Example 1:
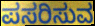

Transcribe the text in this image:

ಪಸರಿಸುವ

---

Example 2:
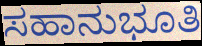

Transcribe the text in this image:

ಸಹಾನುಭೂತಿ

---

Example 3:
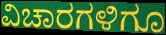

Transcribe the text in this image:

ವಿಚಾರಗಳಿಗೂ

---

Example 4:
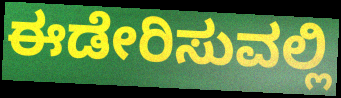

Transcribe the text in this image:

ಈಡೇರಿಸುವಲ್ಲಿ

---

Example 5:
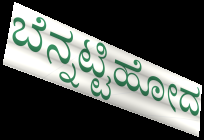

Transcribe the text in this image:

ಬೆನ್ನಟ್ಟಿಹೋದ